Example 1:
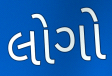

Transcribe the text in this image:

લોગો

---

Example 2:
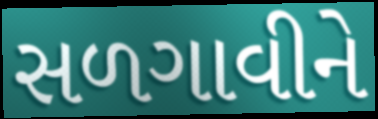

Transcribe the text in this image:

સળગાવીને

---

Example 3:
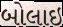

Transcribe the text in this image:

બોલાઇ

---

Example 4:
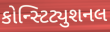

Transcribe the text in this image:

કોન્સ્ટિટ્યુશનલ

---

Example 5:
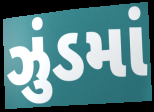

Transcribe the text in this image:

ઝુંડમાં